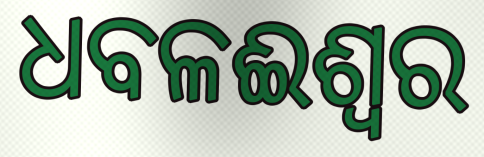
ଧବଳଈଶ୍ବର